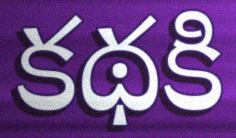
కథకి